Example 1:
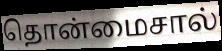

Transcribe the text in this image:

தொன்மைசால்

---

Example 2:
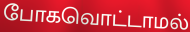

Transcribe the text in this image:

போகவொட்டாமல்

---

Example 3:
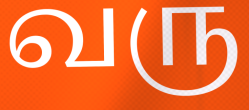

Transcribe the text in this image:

வரு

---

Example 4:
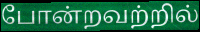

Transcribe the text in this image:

போன்றவற்றில்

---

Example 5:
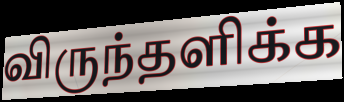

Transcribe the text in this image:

விருந்தளிக்க